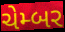
ચેમ્બર